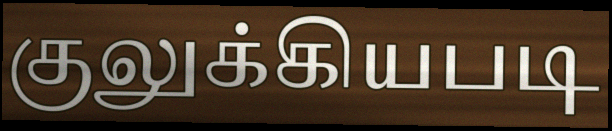
குலுக்கியபடி